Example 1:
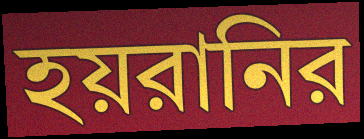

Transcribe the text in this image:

হয়রানির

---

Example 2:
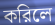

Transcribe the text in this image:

করিলে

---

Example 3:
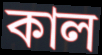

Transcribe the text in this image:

কাল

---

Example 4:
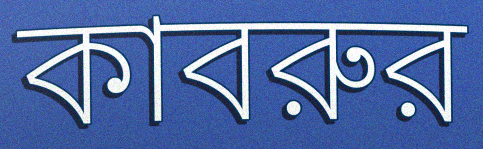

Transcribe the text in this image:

কাবরুর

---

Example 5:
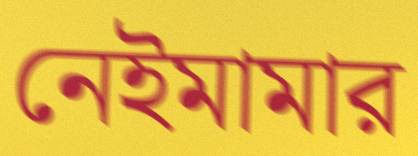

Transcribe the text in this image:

নেইমামার